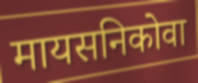
मायसनिकोवा